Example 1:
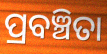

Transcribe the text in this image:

ପ୍ରବଞ୍ଚିତା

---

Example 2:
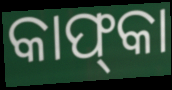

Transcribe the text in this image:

କାଫ୍‌କା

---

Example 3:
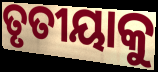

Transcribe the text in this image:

ତୃତୀୟାକୁ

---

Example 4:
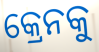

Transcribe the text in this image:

କ୍ରେନକୁ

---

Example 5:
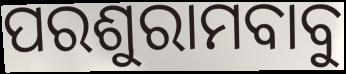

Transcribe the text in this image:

ପରଶୁରାମବାବୁ